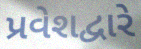
પ્રવેશદ્વારે